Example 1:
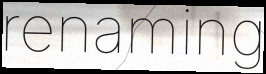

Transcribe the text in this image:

renaming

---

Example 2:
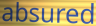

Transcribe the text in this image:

absured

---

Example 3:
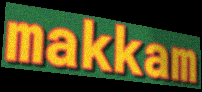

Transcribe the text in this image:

makkam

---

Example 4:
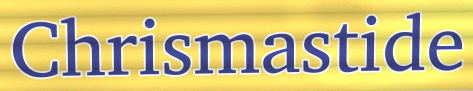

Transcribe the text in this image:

Chrismastide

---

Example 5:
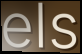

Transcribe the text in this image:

els